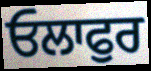
ਓਲਾਫੁਰ